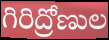
గిరిద్రోణుల